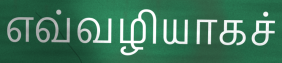
எவ்வழியாகச்